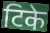
टिके